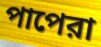
পাপেরা